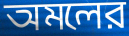
অমলের